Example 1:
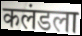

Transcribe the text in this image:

कलंडला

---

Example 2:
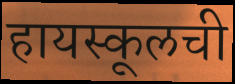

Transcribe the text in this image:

हायस्कूलची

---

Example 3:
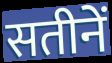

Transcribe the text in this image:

सतीनें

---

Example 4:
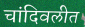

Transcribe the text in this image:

चांदिवलीत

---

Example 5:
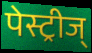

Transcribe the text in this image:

पेस्ट्रीज्